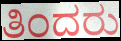
ತಿಂದರು